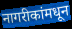
नागरीकांमधून